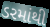
ડરમાંથી